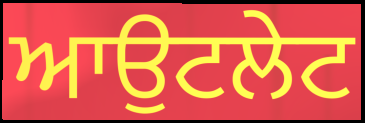
ਆਉਟਲੇਟ